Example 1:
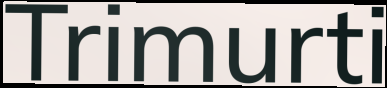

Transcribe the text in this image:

Trimurti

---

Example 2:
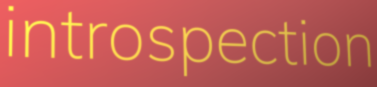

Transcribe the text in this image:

introspection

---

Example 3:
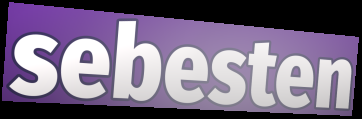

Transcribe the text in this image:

sebesten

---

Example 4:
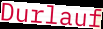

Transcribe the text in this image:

Durlauf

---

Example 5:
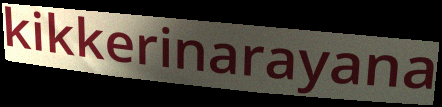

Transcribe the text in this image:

kikkerinarayana